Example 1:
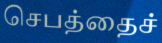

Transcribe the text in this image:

செபத்தைச்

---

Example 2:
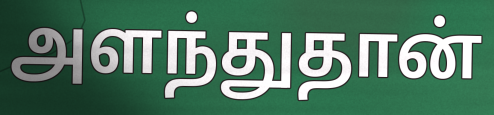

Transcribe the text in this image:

அளந்துதான்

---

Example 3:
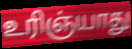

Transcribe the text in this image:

உரிஞ்யாது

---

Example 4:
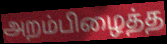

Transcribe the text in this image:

அறம்பிழைத்த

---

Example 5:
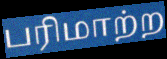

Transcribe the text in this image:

பரிமாற்ற